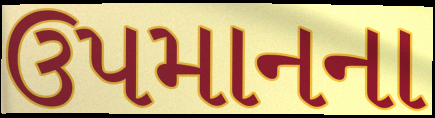
ઉપમાનના